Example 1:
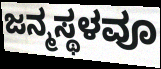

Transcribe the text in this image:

ಜನ್ಮಸ್ಥಳವೂ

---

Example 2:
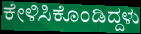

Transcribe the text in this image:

ಕೇಳಿಸಿಕೊಂಡಿದ್ದಳು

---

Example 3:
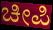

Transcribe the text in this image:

ಚೀಪಿ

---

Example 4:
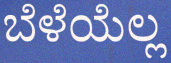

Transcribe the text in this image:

ಬೆಳೆಯೆಲ್ಲ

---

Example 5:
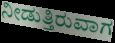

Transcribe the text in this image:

ನೀಡುತ್ತಿರುವಾಗ